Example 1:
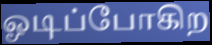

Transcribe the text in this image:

ஓடிப்போகிற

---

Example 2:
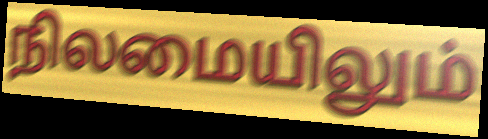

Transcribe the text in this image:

நிலமையிலும்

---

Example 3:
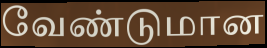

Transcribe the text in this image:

வேண்டுமான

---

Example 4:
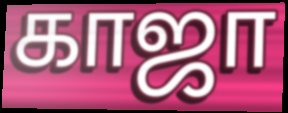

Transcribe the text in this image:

காஜா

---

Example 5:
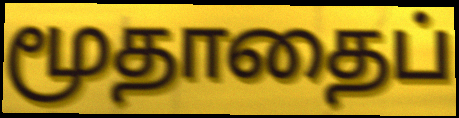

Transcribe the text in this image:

மூதாதைப்